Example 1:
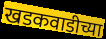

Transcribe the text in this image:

खडकवाडीच्या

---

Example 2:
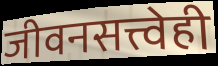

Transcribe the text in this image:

जीवनसत्त्वेही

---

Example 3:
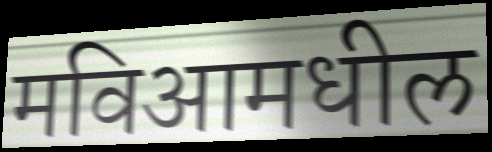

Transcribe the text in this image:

मविआमधील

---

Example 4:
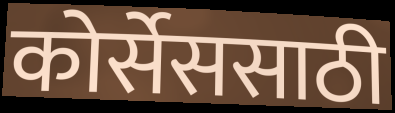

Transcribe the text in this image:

कोर्सेससाठी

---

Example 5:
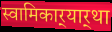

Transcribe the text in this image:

स्वामिकार्यार्था